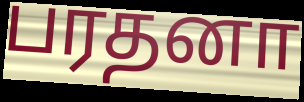
பரதனா